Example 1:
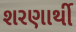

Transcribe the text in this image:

શરણાર્થી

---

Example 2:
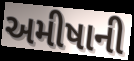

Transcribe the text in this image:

અમીષાની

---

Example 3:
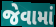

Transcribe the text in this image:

જેવામાં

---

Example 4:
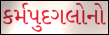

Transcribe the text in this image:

કર્મપુદગલોનો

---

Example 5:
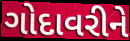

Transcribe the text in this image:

ગોદાવરીને